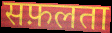
सफ़लता